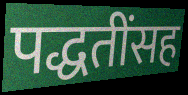
पद्धतींसह